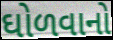
ઘોળવાનો